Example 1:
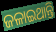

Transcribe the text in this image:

ଜଳାଇଥାନ୍ତି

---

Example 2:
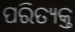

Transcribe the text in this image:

ପରିତ୍ୟକ୍ତ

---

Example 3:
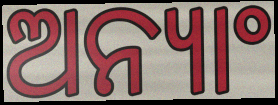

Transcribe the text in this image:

ଅନ୍ୟାଂ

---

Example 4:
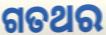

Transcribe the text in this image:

ଗତଥର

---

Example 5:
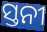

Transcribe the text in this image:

ସ୍ତନୀ